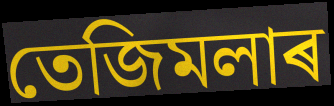
তেজিমলাৰ